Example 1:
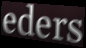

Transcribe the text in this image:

eders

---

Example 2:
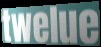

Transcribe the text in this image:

twelue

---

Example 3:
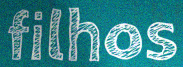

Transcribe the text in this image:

filhos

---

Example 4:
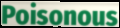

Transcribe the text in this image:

Poisonous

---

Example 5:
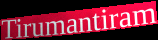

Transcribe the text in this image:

Tirumantiram